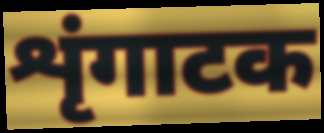
शृंगाटक